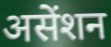
असेंशन